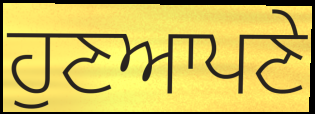
ਹੁਣਆਪਣੇ